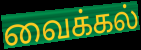
வைக்கல்